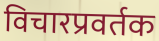
विचारप्रवर्तक